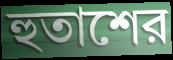
হুতাশের